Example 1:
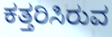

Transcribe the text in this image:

ಕತ್ತರಿಸಿರುವ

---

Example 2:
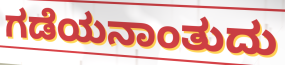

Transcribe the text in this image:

ಗಡೆಯನಾಂತುದು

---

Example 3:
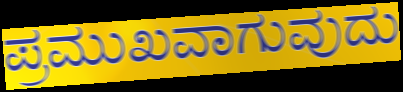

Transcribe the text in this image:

ಪ್ರಮುಖವಾಗುವುದು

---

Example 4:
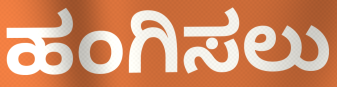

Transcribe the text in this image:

ಹಂಗಿಸಲು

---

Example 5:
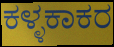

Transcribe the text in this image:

ಕಳ್ಳಕಾಕರ